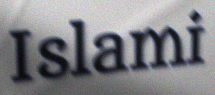
Islami